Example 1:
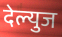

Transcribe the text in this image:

देल्युज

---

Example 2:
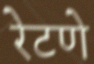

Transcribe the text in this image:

रेटणे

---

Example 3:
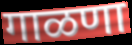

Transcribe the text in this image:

गाळणा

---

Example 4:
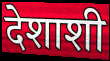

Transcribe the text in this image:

देशाशी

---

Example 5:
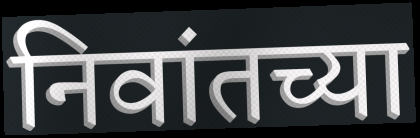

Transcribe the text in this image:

निवांतच्या